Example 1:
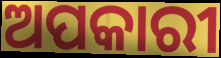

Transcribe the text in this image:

ଅପକାରୀ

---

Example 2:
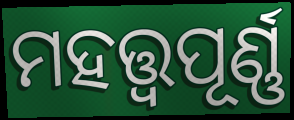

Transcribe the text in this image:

ମହତ୍ତ୍ୱପୂର୍ଣ୍ଣ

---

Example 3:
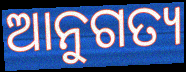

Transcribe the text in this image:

ଆନୁଗତ୍ୟ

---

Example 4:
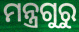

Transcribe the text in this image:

ମନ୍ତ୍ରଗୁରୁ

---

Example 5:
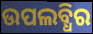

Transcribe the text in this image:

ଉପଲବ୍ଧିର